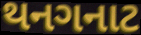
થનગનાટ